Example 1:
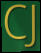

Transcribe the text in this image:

CJ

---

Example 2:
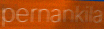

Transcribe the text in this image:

pernankila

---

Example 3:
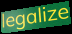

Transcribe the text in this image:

legalize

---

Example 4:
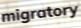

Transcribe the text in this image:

migratory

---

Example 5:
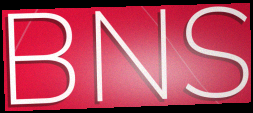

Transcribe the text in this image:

BNS